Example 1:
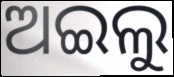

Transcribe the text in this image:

ଅଇଲୁ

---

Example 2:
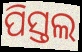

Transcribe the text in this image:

ପିସ୍ତଲ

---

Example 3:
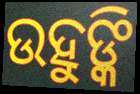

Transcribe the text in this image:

ଉହୁଙ୍କି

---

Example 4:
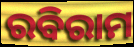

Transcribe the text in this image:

ରବିରାମ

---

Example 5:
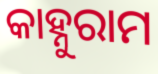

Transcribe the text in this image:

କାହ୍ନୁରାମ